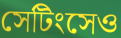
সেটিংসেও